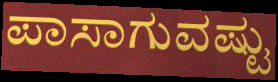
ಪಾಸಾಗುವಷ್ಟು